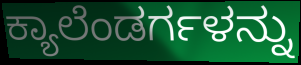
ಕ್ಯಾಲೆಂಡರ್ಗಳನ್ನು